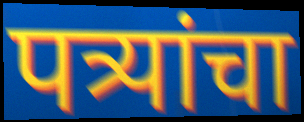
पत्र्यांचा